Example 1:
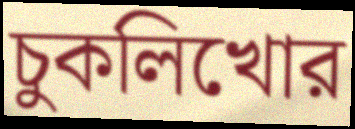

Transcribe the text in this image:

চুকলিখোর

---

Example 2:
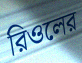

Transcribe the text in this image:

রিওলের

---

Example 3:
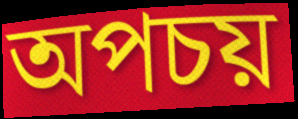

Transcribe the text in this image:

অপচয়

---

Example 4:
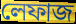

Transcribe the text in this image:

লেফাজ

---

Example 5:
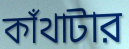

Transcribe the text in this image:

কাঁথাটার